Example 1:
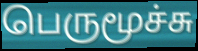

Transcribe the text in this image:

பெருமூச்சு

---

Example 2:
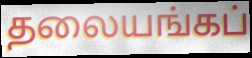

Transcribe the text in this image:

தலையங்கப்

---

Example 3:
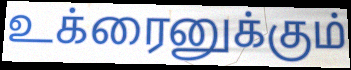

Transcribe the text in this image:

உக்ரைனுக்கும்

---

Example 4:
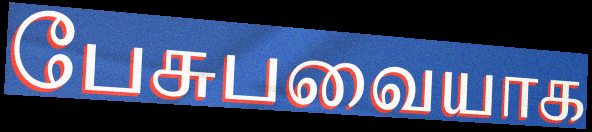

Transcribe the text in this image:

பேசுபவையாக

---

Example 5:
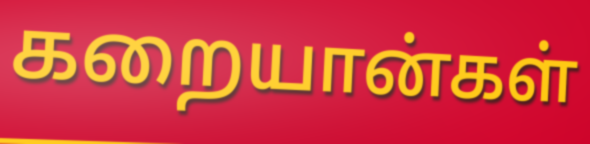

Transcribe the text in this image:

கறையான்கள்